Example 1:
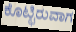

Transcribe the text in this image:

ಕೊಟ್ಟಿರುವಾಗ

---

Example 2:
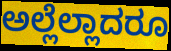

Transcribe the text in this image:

ಅಲ್ಲೆಲ್ಲಾದರೂ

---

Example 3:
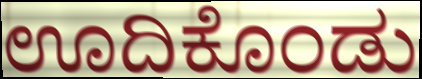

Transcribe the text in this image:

ಊದಿಕೊಂಡು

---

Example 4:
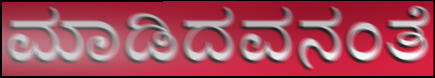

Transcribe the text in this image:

ಮಾಡಿದವನಂತೆ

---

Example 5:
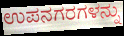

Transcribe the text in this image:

ಉಪನಗರಗಳನ್ನು